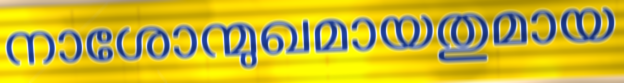
നാശോന്മുഖമായതുമായ